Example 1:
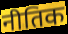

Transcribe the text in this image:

नीतिक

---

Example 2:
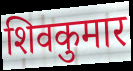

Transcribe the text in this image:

शिवकुमार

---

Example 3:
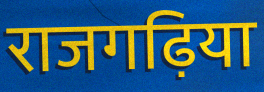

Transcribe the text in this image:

राजगढ़िया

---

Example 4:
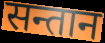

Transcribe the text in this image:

सन्तान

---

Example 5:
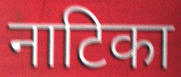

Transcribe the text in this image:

नाटिका